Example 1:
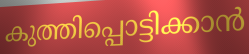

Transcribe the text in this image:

കുത്തിപ്പൊട്ടിക്കാൻ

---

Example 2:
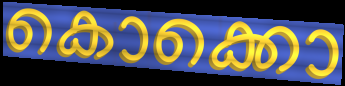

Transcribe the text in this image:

കൊക്കൊ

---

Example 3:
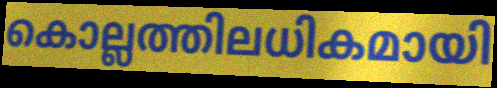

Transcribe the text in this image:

കൊല്ലത്തിലധികമായി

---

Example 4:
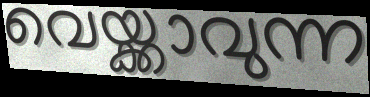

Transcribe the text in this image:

വെയ്ക്കാവുന്ന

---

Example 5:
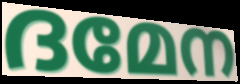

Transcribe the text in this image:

ദമേന